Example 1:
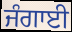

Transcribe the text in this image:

ਜੰਗਾਈ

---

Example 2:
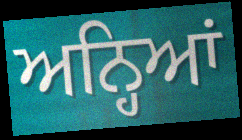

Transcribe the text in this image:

ਅਨ੍ਹਿਆਂ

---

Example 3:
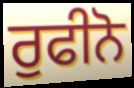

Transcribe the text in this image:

ਰੁਫੀਨੋ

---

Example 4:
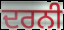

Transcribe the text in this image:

ਦਰਨੀ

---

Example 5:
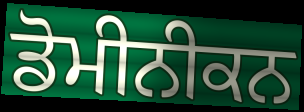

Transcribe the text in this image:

ਡੋਮੀਨੀਕਨ